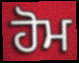
ਹੋਮ